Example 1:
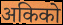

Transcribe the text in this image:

अकिको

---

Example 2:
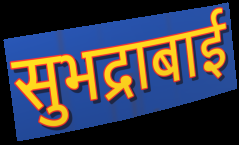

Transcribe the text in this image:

सुभद्राबाई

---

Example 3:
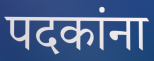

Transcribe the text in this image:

पदकांना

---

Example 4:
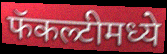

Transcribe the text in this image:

फॅकल्टीमध्ये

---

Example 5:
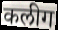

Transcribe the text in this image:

कलीग